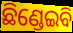
ଛିଣ୍ଡେଇବି